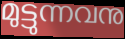
മുട്ടുന്നവനു